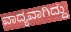
ವಾದ್ಯವಾಗಿದ್ದು